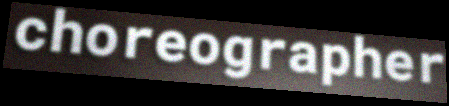
choreographer